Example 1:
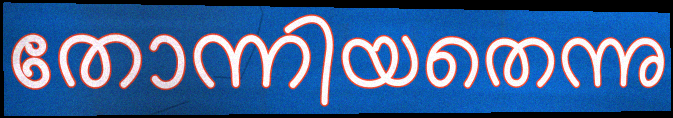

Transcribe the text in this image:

തോന്നിയതെന്നു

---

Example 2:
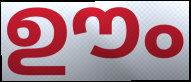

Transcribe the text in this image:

ഊം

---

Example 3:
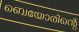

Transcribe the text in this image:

ബെയോരിന്റെ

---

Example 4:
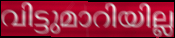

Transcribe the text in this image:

വിട്ടുമാറിയില്ല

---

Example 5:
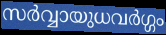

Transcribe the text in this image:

സർവ്വായുധവർഗ്ഗം